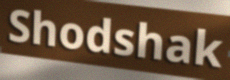
Shodshak